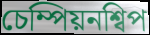
চেম্পিয়নশ্বিপ